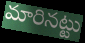
మారినట్టు